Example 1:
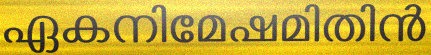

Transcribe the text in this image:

ഏകനിമേഷമിതിൻ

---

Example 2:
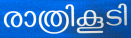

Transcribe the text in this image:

രാത്രികൂടി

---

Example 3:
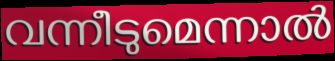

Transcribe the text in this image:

വന്നീടുമെന്നാൽ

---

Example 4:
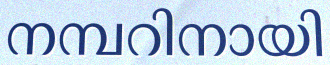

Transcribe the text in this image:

നമ്പറിനായി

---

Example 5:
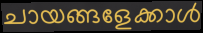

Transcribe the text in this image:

ചായങ്ങളേക്കാൾ